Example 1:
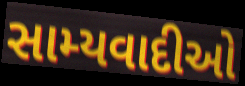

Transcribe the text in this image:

સામ્યવાદીઓ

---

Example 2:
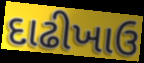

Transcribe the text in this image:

દાઢીખાઉ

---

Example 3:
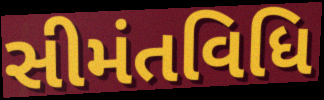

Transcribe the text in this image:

સીમંતવિધિ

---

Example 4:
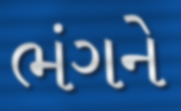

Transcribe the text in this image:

ભંગને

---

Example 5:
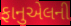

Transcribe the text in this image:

ફાનુએલની